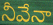
నీవేనా